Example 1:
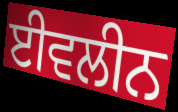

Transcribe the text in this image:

ਈਵਲੀਨ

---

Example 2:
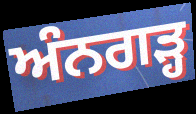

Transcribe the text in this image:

ਅੰਨਗੜ੍ਹ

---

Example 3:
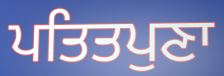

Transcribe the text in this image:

ਪਤਿਤਪੁਣਾ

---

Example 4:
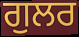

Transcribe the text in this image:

ਗੁਲਰ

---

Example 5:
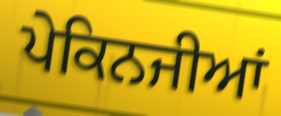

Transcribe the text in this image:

ਪੇਕਿਨਜੀਆਂ